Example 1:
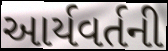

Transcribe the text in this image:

આર્યવર્તની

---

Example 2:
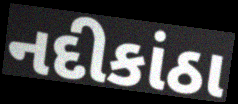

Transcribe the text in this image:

નદીકાંઠા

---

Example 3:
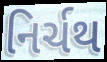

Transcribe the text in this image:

નિર્ચથ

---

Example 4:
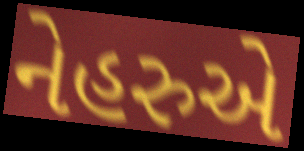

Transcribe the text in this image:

નેહરુએ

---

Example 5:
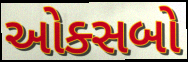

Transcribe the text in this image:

ઓક્સબો